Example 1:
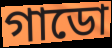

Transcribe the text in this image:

গাডো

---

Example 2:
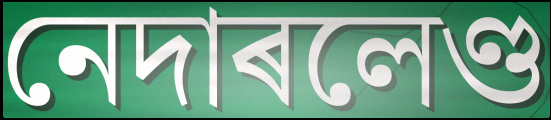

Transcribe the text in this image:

নেদাৰলেণ্ড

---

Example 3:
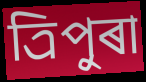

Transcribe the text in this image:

ত্ৰিপুৰা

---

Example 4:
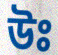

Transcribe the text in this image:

উঃ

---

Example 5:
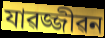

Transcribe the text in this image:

যাৱজ্জীৱন